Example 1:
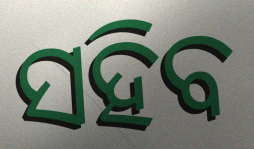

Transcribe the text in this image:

ସହିବ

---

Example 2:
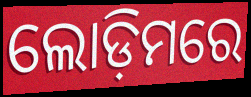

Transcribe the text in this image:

ଲୋଡ଼ିମରେ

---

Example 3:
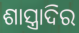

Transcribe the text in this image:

ଶାସ୍ତ୍ରାଦିର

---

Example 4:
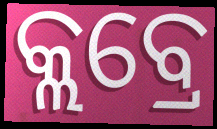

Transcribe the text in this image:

କ୍ଲବ୍ରେ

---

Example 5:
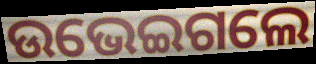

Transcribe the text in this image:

ଉଭେଇଗଲେ